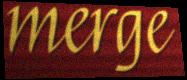
merge